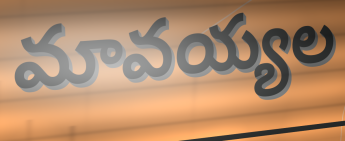
మావయ్యల